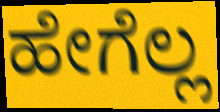
ಹೇಗೆಲ್ಲ